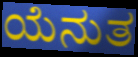
ಯೆನುತ